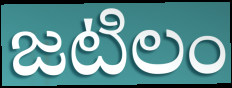
జటిలం